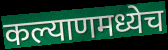
कल्याणमध्येच